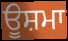
ਊਸ਼ਮਾ